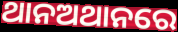
ଥାନଅଥାନରେ